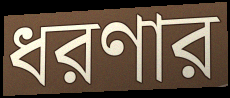
ধরণার